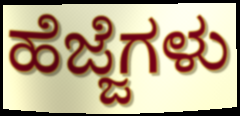
ಹೆಜ್ಜೆಗಳು